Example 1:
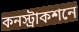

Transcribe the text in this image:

কনস্ট্রাকশনে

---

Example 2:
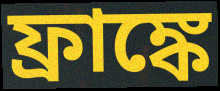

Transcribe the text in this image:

ফ্রাঙ্কে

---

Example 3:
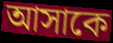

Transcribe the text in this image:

আসাকে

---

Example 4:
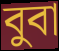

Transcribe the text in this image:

বুবা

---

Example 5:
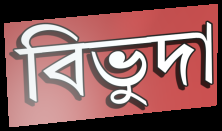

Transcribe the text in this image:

বিভুদা